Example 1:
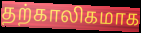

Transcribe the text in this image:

தற்காலிகமாக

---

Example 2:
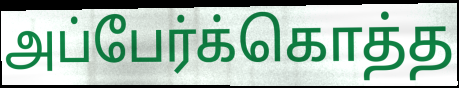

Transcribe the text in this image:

அப்பேர்க்கொத்த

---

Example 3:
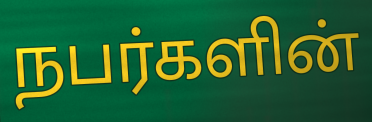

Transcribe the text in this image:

நபர்களின்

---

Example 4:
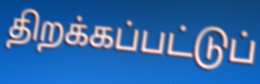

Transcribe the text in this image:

திறக்கப்பட்டுப்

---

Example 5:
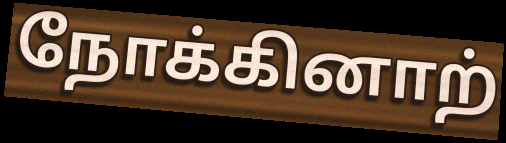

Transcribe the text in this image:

நோக்கினாற்